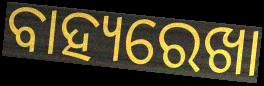
ବାହ୍ୟରେଖା